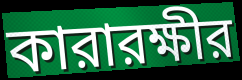
কারারক্ষীর